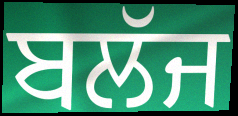
ਬਲੱਜ